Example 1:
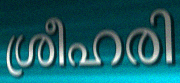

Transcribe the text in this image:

ശ്രീഹരി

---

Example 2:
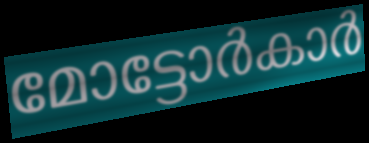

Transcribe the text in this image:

മോട്ടോർകാർ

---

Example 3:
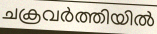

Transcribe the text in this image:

ചക്രവർത്തിയിൽ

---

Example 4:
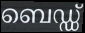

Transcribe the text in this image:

ബെഡ്ഡ്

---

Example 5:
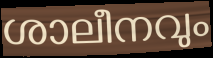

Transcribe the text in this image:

ശാലീനവും